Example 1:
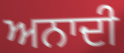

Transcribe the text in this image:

ਅਨਾਦੀ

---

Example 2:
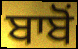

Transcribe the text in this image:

ਬਾਬੋਂ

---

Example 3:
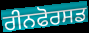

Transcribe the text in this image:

ਰੀਨਫੋਰਸਡ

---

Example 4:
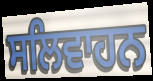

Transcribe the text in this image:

ਸਲਿਵਾਹਨ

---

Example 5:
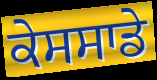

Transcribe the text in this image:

ਕੇਸਸਾਡੇ